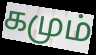
கமும்